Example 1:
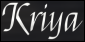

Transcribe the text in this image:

Kriya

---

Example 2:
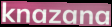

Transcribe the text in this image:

knazana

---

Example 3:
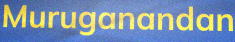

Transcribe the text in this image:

Muruganandan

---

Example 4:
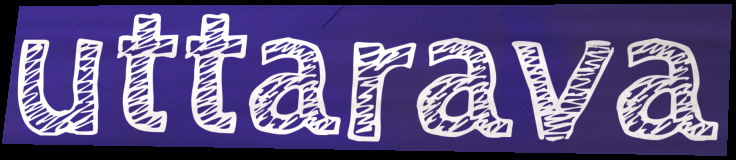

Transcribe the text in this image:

uttarava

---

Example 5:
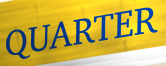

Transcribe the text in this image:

QUARTER